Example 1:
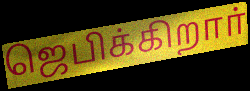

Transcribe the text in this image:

ஜெபிக்கிறார்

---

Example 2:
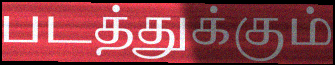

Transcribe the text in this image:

படத்துக்கும்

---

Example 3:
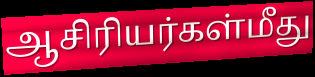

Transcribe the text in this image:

ஆசிரியர்கள்மீது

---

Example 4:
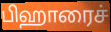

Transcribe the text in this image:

பிஹாரைச்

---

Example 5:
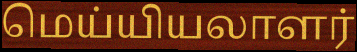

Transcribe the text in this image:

மெய்யியலாளர்